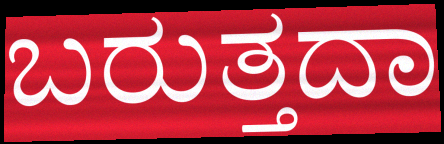
ಬರುತ್ತದಾ